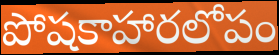
పోషకాహారలోపం